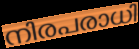
നിരപരാധി